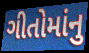
ગીતોમાંનુ